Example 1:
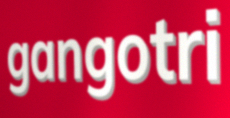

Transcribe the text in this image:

gangotri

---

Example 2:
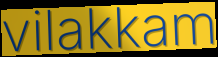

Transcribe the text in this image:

vilakkam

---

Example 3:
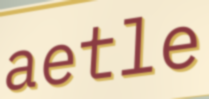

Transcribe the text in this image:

aetle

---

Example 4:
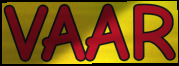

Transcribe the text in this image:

VAAR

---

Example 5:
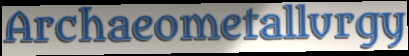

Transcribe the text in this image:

Archaeometallurgy